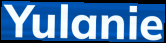
Yulanie